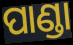
ପାଣ୍ଡା